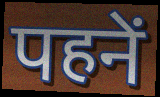
पहनें